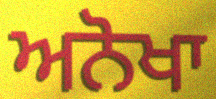
ਅਨੋਖਾ